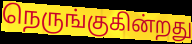
நெருங்குகின்றது